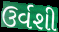
ઉર્વશી